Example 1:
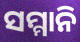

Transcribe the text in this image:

ସମ୍ମାନି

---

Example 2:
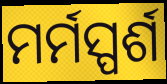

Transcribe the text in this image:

ମର୍ମସ୍ପର୍ଶ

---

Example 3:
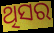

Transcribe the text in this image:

ଥିସର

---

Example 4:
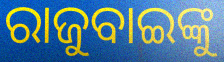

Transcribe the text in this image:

ରାଜୁବାଇଙ୍କୁ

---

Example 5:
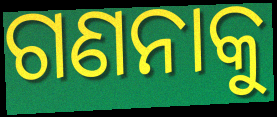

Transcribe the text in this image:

ଗଣନାକୁ